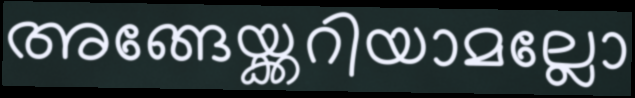
അങ്ങേയ്ക്കറിയാമല്ലോ